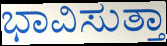
ಭಾವಿಸುತ್ತಾ